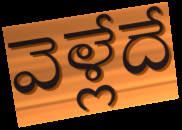
వెళ్లేదే